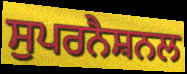
ਸੁਪਰਨੈਸ਼ਨਲ